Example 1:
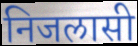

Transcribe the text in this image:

निजलासी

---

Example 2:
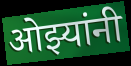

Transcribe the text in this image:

ओझ्यांनी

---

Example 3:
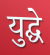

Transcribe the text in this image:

युद्घे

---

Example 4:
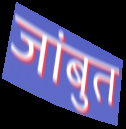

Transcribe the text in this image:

जांबुत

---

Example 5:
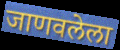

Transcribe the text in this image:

जाणवलेला